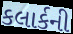
કલાર્કની